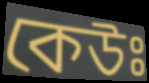
কেউঃ